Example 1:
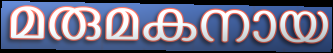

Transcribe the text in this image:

മരുമകനായ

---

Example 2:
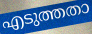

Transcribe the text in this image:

എടുത്തതാ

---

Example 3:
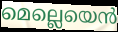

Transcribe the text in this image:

മെല്ലെയെൻ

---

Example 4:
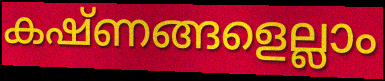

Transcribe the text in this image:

കഷ്ണങ്ങളെല്ലാം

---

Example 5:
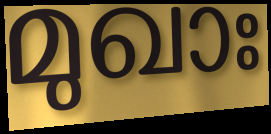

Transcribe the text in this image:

മുഖാഃ